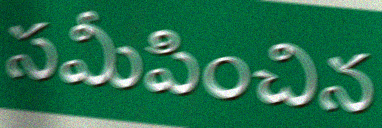
సమీపించిన